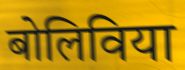
बोलिविया